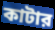
কাটার